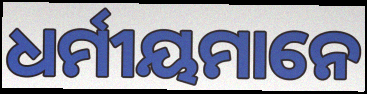
ଧର୍ମୀୟମାନେ